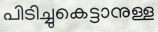
പിടിച്ചുകെട്ടാനുള്ള